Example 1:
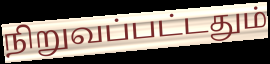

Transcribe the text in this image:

நிறுவப்பட்டதும்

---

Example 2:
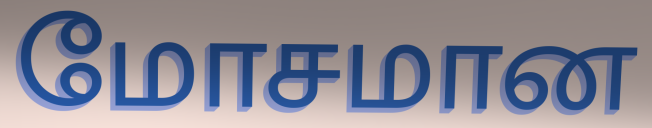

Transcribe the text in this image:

மோசமான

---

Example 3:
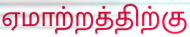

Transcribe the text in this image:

ஏமாற்றத்திற்கு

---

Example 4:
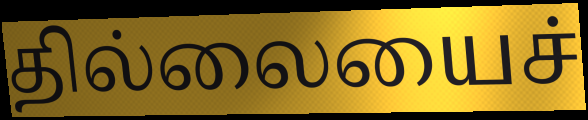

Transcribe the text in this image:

தில்லையைச்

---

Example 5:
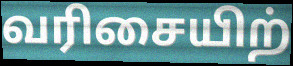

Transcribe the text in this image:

வரிசையிற்